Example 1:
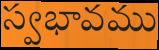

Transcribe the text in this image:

స్వభావము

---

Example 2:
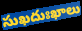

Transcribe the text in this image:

సుఖదుఃఖాలు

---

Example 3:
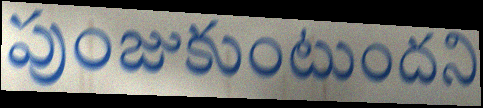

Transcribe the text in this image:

పుంజుకుంటుందని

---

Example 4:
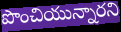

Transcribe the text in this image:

పొంచియున్నారని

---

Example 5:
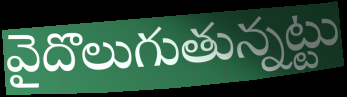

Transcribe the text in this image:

వైదొలుగుతున్నట్టు